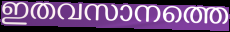
ഇതവസാനത്തെ